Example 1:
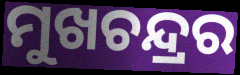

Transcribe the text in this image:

ମୁଖଚନ୍ଦ୍ରର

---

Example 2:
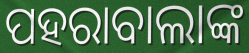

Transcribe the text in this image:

ପହରାବାଲାଙ୍କ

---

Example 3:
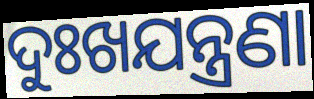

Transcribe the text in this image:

ଦୁଃଖଯନ୍ତ୍ରଣା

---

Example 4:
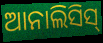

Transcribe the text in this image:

ଆନାଲିସିସ୍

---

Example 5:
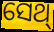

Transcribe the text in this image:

ସେଥ୍